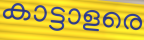
കാട്ടാളരെ